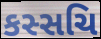
કસ્સચિ